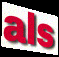
als